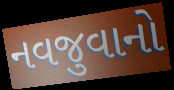
નવજુવાનો